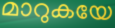
മാറുകയേ